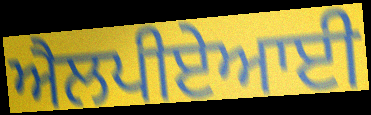
ਐਲਪੀਏਆਈ